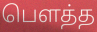
பெளத்த